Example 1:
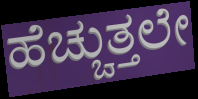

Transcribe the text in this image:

ಹೆಚ್ಚುತ್ತಲೇ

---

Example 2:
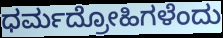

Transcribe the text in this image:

ಧರ್ಮದ್ರೋಹಿಗಳೆಂದು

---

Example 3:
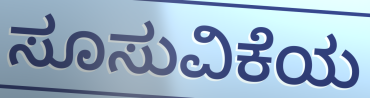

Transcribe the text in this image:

ಸೂಸುವಿಕೆಯ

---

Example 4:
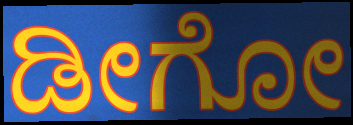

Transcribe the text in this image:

ಡೀಗೋ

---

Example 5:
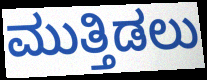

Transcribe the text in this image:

ಮುತ್ತಿಡಲು